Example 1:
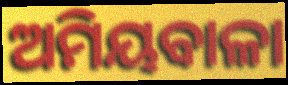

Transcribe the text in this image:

ଅମିୟବାଳା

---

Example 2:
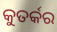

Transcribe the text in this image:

କୁତର୍କର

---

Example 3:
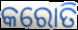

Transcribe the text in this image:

କରୋତି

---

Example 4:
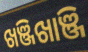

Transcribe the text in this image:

ଖଞ୍ଜିଖାଞ୍ଜି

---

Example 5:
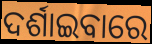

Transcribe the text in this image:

ଦର୍ଶାଇବାରେ